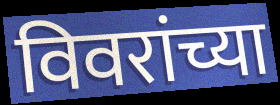
विवरांच्या